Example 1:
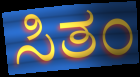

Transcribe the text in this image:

ಸಿತಂ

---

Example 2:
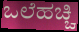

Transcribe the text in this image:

ಒಲೆಹಚ್ಚಿ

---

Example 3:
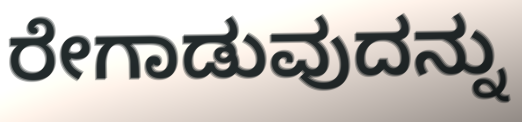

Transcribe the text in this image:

ರೇಗಾಡುವುದನ್ನು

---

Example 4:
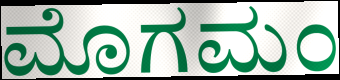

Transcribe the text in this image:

ಮೊಗಮಂ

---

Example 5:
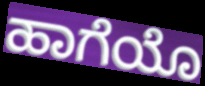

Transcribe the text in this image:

ಹಾಗೆಯೊ